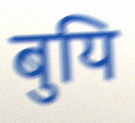
बुयि